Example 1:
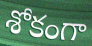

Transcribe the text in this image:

శోకంగా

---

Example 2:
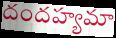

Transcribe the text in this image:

దందహ్యమా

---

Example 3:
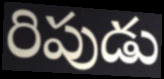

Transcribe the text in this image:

రిపుడు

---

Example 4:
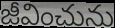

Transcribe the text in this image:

జీవించును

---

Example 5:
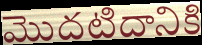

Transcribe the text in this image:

మొదటిదానికి